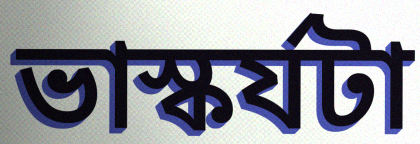
ভাস্কর্যটা